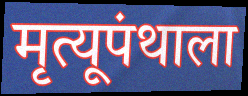
मृत्यूपंथाला